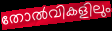
തോൽവികളിലും